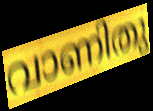
വാണിതു